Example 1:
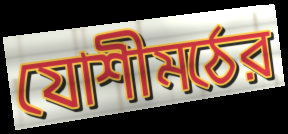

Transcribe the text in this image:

যোশীমঠের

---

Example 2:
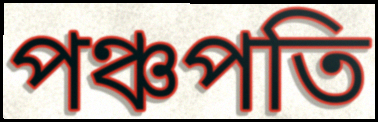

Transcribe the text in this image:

পঞ্চপতি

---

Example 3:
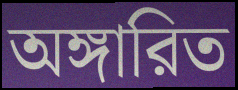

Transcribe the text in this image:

অঙ্গারিত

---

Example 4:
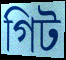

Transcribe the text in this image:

গিট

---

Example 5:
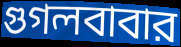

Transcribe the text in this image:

গুগলবাবার